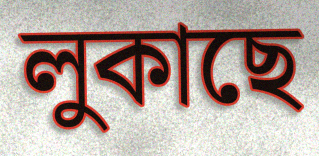
লুকাছে